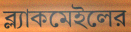
ব্ল্যাকমেইলের